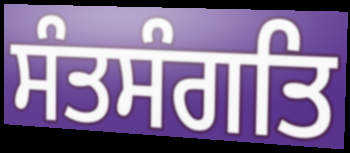
ਸੰਤਸੰਗਤਿ